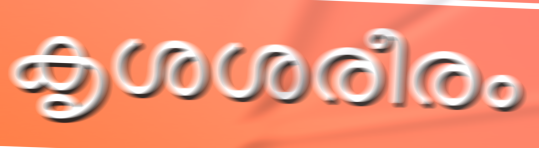
കൃശശരീരം